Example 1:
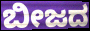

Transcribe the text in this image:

ಬೀಜದ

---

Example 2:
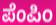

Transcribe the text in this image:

ಪೆಂಪಿಂ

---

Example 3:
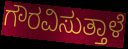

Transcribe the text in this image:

ಗೌರವಿಸುತ್ತಾಳೆ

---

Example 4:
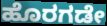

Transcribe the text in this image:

ಹೊರಗಡೇ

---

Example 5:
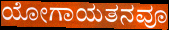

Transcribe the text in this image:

ಯೋಗಾಯತನವೂ